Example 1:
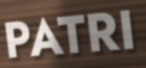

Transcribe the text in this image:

PATRI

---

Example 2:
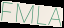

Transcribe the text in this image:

FMLA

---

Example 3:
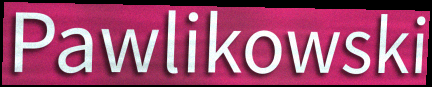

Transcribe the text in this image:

Pawlikowski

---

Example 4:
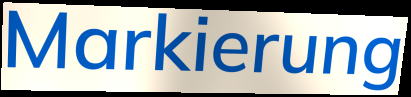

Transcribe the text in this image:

Markierung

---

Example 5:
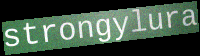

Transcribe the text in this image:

strongylura